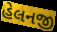
હેલનજી